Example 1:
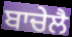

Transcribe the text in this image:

ਬਾਚੇਲੈ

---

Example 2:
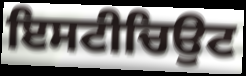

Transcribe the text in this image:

ਇਸਟੀਚਿਉਟ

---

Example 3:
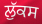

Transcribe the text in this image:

ਲੁੱਕਸ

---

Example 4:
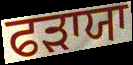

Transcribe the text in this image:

ਫੜਾਯਾ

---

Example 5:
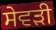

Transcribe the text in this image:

ਸੇਵੜੀ